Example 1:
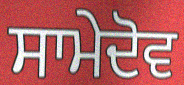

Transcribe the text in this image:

ਸਾਮੇਦੋਵ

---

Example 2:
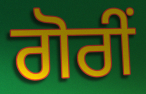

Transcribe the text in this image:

ਗੋਰੀਂ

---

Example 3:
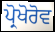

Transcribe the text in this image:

ਪ੍ਰੋਖੋਰੋਵ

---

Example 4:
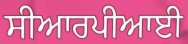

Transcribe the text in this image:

ਸੀਆਰਪੀਆਈ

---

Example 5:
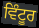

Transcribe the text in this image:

ਵਿੰਟੂਰ